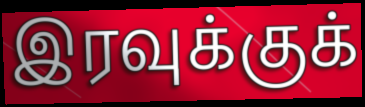
இரவுக்குக்